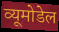
व्यूमोडेल